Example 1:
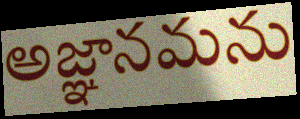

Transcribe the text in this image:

అజ్ఞానమను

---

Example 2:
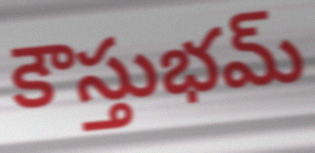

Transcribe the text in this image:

కౌస్తుభమ్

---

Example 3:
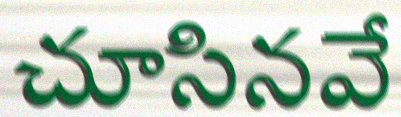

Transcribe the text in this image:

చూసినవే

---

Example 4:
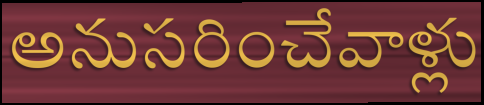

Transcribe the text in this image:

అనుసరించేవాళ్లు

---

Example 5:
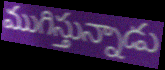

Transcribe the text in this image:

ముగిస్తున్నాడు